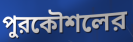
পুরকৌশলের